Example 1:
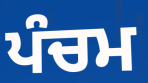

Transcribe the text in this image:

ਪੰਚਮ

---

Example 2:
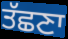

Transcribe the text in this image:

ਤੱਛਣਾ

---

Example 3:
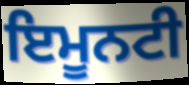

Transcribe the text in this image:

ਇਮੂਨਟੀ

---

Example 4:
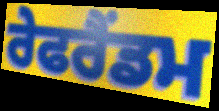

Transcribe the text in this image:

ਰੇਫਰੈਂਡਮ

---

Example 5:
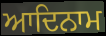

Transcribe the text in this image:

ਆਦਿਨਾਮ